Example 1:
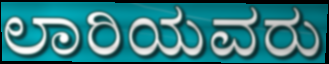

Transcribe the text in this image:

ಲಾರಿಯವರು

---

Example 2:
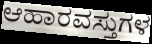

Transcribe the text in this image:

ಆಹಾರವಸ್ತುಗಳ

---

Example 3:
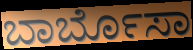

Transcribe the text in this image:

ಬಾರ್ಬೊಸಾ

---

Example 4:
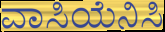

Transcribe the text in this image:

ವಾಸಿಯೆನಿಸಿ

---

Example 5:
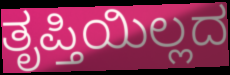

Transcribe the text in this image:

ತೃಪ್ತಿಯಿಲ್ಲದ